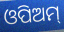
ଓପିଅମ୍